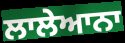
ਲਾਲੇਆਨਾ